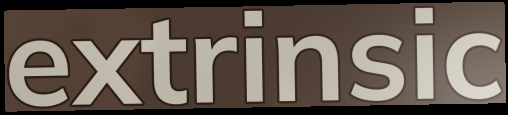
extrinsic